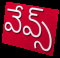
వేవ్స్